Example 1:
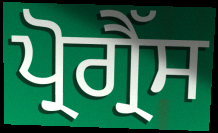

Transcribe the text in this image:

ਪ੍ਰੋਗ੍ਰੈੱਸ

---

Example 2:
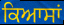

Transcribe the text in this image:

ਕਿਆਸਾਂ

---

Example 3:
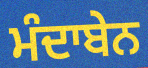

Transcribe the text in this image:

ਮੰਦਾਬੇਨ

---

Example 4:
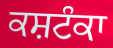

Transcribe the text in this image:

ਕਸ਼ਟੰਕਾ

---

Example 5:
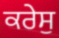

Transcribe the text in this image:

ਕਰੇਸੁ